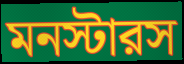
মনস্টারস